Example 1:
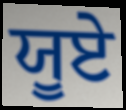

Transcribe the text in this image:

ਯੂਏ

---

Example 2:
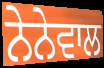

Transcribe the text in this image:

ਨੇਨੇਵਾਲ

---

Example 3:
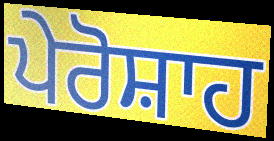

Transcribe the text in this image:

ਪੇਰੋਸ਼ਾਹ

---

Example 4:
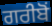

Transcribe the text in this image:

ਗਰੀਬੋਂ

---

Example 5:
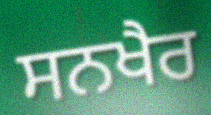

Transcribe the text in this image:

ਸਨਖੈਰ